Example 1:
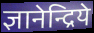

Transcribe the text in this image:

ज्ञानेन्द्रिये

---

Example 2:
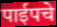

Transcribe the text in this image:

पाईपचे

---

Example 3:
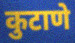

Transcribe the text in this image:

कुटाणे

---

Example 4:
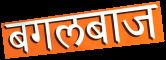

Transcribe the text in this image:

बगलबाज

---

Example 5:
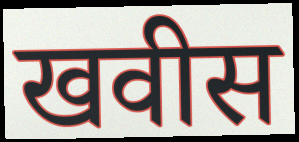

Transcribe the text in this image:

खवीस